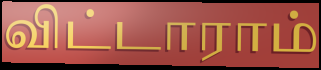
விட்டாராம்